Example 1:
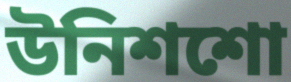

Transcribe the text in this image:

উনিশশো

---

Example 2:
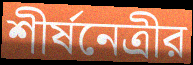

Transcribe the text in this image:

শীর্ষনেত্রীর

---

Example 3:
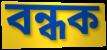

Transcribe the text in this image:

বন্ধক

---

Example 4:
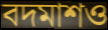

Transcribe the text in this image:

বদমাশও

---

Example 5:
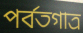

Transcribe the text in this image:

পর্বতগাত্র